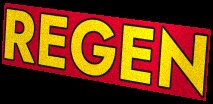
REGEN